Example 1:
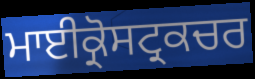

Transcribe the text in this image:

ਮਾਈਕ੍ਰੋਸਟ੍ਰਕਚਰ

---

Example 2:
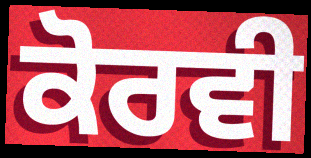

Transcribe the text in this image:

ਕੋਰਵੀ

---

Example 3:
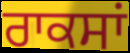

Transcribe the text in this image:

ਰਾਕਸਾਂ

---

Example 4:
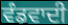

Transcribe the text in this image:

ਵੰਡਵਾਦੀ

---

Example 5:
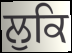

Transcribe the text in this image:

ਲੁਕਿ